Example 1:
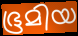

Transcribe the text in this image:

ഭൂമിയ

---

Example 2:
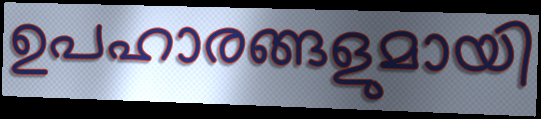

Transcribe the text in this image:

ഉപഹാരങ്ങളുമായി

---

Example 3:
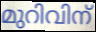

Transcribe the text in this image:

മുറിവിന്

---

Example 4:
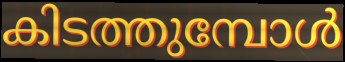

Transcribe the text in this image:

കിടത്തുമ്പോൾ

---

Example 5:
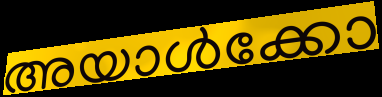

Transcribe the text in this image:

അയാൾക്കോ